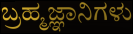
ಬ್ರಹ್ಮಜ್ಞಾನಿಗಳು